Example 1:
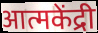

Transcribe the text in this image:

आत्मकेंद्री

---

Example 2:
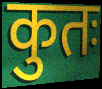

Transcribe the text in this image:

कुतः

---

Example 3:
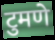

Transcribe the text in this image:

टुमणे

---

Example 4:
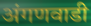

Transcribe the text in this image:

अंगणवाडी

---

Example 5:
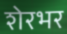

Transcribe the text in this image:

शेरभर